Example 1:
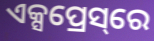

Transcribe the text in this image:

ଏକ୍ସପ୍ରେସ୍‌ରେ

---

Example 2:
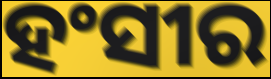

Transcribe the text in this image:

ହଂସୀର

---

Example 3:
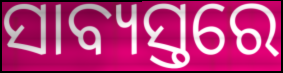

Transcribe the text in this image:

ସାବ୍ୟସ୍ତରେ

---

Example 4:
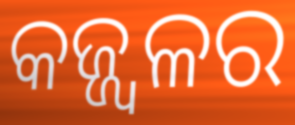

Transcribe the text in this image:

କଜ୍ଜ୍ୱଳର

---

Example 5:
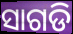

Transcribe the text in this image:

ସାଗଡି